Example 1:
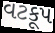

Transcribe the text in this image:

વટકૂપ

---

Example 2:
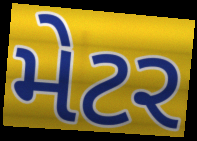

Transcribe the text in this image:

મેટર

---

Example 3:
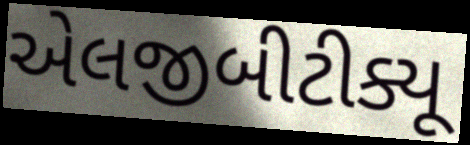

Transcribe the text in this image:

એલજીબીટીક્યૂ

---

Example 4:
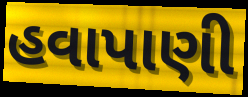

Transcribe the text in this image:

હવાપાણી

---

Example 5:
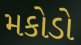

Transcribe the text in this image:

મકોડો